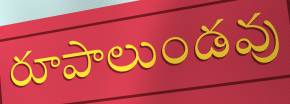
రూపాలుండవు